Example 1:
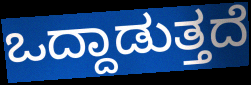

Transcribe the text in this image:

ಒದ್ದಾಡುತ್ತದೆ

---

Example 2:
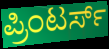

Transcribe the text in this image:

ಪ್ರಿಂಟರ್ಸ್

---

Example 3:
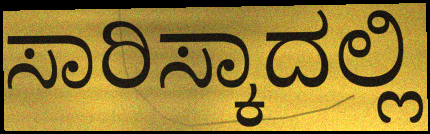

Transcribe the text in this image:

ಸಾರಿಸ್ಕಾದಲ್ಲಿ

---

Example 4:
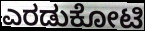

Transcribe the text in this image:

ಎರಡುಕೋಟಿ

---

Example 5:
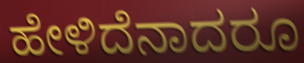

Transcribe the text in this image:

ಹೇಳಿದೆನಾದರೂ